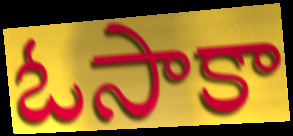
ఓసాకా